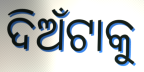
ଦିଅଁଟାକୁ